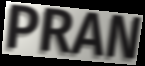
PRAN